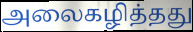
அலைகழித்தது